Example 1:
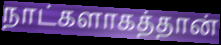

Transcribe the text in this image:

நாட்களாகத்தான்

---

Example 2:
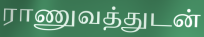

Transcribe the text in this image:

ராணுவத்துடன்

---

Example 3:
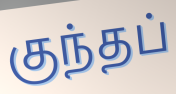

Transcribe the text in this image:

குந்தப்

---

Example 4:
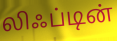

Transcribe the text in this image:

லிஃப்டின்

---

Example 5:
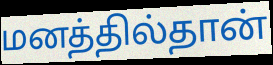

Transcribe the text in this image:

மனத்தில்தான்